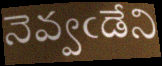
నెవ్వఁడేని